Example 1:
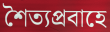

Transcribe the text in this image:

শৈত্যপ্রবাহে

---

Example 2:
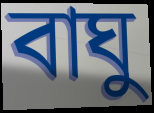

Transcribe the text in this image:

বাঘু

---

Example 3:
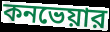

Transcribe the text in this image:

কনভেয়ার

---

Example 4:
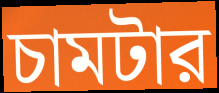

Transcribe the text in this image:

চামটার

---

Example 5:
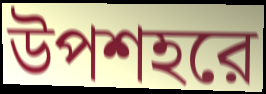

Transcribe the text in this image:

উপশহরে